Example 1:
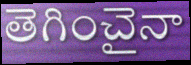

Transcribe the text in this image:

తెగించైనా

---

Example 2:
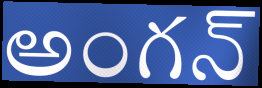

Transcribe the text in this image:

అంగన్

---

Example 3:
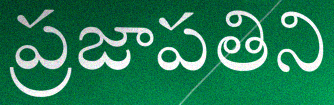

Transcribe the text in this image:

ప్రజాపతిని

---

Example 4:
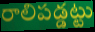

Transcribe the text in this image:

రాలిపడ్డట్టు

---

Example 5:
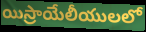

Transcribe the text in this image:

యిస్రాయేలీయులలో